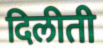
दिलीती